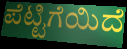
ಪೆಟ್ಟಿಗೆಯಿದೆ